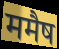
ममैष